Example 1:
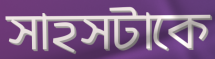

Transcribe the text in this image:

সাহসটাকে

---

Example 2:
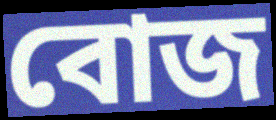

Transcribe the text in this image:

বোজ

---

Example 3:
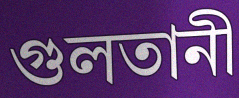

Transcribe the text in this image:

গুলতানী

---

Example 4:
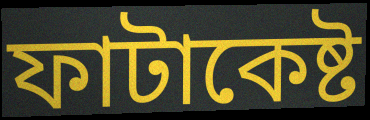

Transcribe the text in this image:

ফাটাকেষ্ট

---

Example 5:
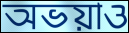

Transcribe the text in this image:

অভয়াও